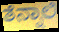
ತೆನ್ನಾಲಿ